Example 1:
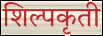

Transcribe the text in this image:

शिल्पकृती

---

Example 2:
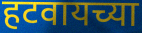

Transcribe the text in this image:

हटवायच्या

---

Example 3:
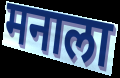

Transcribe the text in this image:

मनाला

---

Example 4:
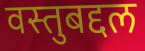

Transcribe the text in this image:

वस्तुबद्दल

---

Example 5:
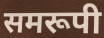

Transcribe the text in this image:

समरूपी